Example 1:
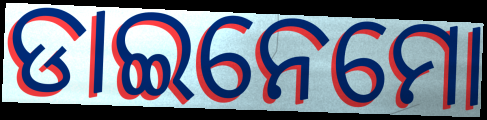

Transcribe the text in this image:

ଡାଇନେମୋ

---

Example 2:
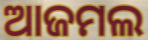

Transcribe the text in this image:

ଆଜମଲ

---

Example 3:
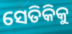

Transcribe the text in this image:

ସେତିକିକୁ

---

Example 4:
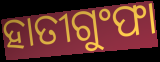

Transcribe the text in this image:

ହାତୀଗୁଂଫା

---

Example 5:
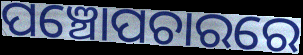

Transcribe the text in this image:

ପଞ୍ଚୋପଚାରରେ